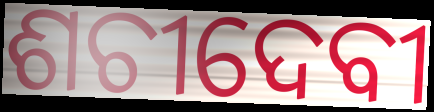
ଶଚୀଦେବୀ